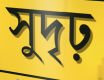
সুদৃঢ়